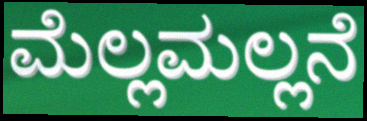
ಮೆಲ್ಲಮಲ್ಲನೆ